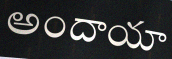
అందాయా